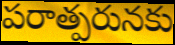
పరాత్పరునకు